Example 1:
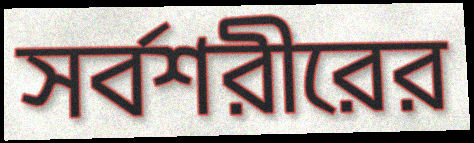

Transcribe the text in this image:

সর্বশরীরের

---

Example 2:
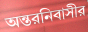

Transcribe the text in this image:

অন্তরনিবাসীর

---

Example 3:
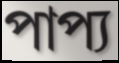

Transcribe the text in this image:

পাপ্য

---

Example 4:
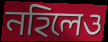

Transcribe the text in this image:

নহিলেও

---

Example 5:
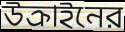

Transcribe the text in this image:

উক্রাইনের